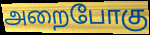
அறைபோகு